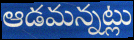
ఆడమన్నట్లు